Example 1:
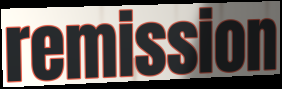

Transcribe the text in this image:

remission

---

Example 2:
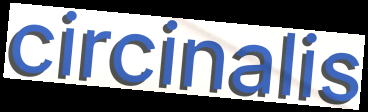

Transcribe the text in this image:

circinalis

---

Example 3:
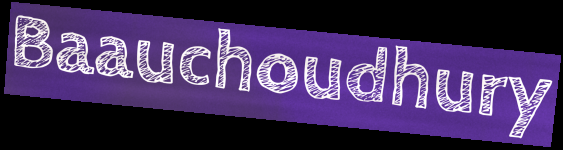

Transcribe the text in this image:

Baauchoudhury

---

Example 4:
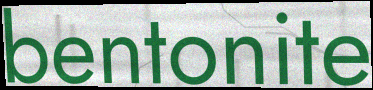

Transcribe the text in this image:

bentonite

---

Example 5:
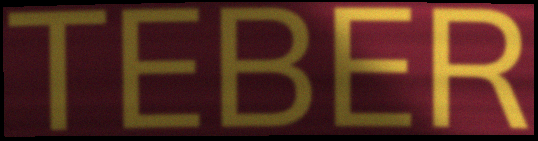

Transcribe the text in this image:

TEBER